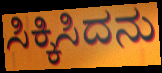
ಸಿಕ್ಕಿಸಿದನು